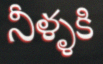
నీళ్ళకి